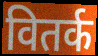
वितर्क